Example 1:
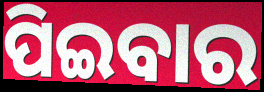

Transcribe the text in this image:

ପିଇବାର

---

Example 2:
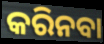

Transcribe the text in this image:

କରିନବା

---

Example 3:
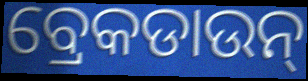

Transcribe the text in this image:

ବ୍ରେକଡାଉନ୍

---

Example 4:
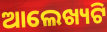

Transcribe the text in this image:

ଆଲେଖ୍ୟଟି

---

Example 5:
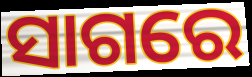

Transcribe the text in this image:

ସାଗରେ